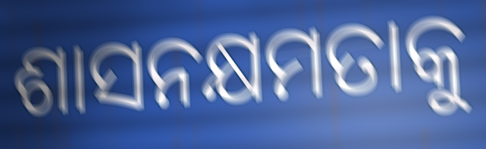
ଶାସନକ୍ଷମତାକୁ